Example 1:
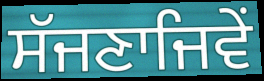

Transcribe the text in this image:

ਸੱਜਣਾਜਿਵੇਂ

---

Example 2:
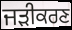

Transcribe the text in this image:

ਜੜੀਕਰਣ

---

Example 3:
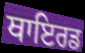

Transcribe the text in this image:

ਥਾਇਰਡ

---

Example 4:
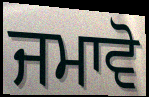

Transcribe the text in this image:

ਜਮਾਵੋ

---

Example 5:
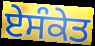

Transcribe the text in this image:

ਏਸੰਕੇਤ